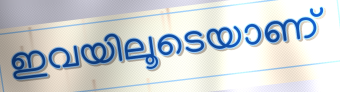
ഇവയിലൂടെയാണ്